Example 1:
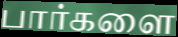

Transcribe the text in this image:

பார்களை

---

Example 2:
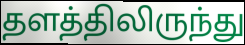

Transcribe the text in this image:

தளத்திலிருந்து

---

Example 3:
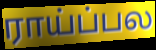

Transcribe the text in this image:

ராய்ப்பல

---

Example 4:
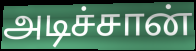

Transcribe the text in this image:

அடிச்சான்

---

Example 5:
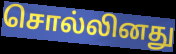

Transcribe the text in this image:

சொல்லினது